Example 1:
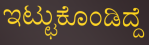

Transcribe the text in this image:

ಇಟ್ಟುಕೊಂಡಿದ್ದೆ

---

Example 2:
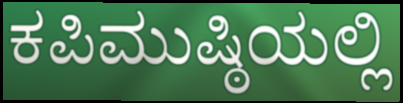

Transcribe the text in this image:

ಕಪಿಮುಷ್ಠಿಯಲ್ಲಿ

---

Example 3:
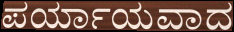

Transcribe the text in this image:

ಪರ್ಯಾಯವಾದ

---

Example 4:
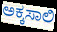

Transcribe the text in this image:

ಅಕ್ಕಸಾಲಿ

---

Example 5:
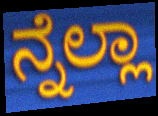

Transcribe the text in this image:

ನ್ನೆಲ್ಲಾ